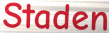
Staden